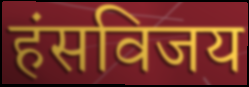
हंसविजय